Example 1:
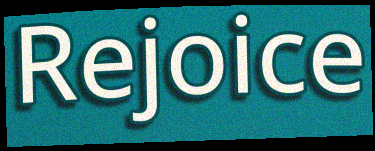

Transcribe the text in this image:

Rejoice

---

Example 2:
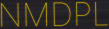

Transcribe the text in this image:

NMDPL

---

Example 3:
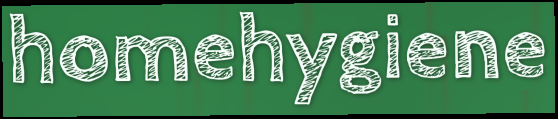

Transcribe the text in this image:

homehygiene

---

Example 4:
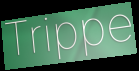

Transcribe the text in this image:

Trippe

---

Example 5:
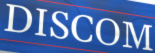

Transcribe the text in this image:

DISCOM